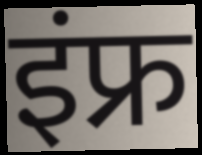
इंफ्र